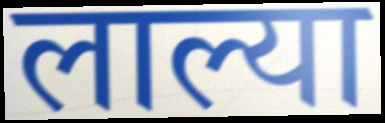
लाल्या